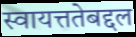
स्वायत्ततेबद्दल